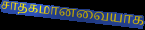
சாதகமானவையாக